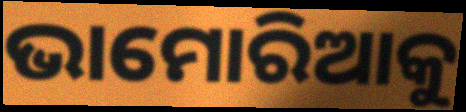
ଭାମୋରିଆକୁ